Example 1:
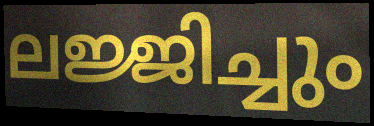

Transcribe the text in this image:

ലജ്ജിച്ചും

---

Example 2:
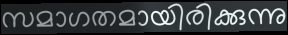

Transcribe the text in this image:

സമാഗതമായിരിക്കുന്നു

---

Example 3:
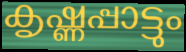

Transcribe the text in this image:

കൃഷ്ണപ്പാട്ടും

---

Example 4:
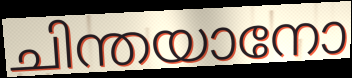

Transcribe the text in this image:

ചിന്തയാനോ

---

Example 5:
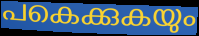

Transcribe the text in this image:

പകെക്കുകയും